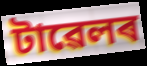
টাৱেলৰ